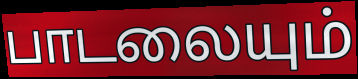
பாடலையும்